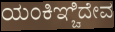
ಯಂಕಿಞ್ಚಿದೇವ